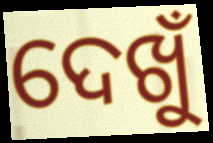
ଦେଖୁଁ